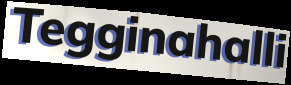
Tegginahalli